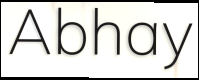
Abhay